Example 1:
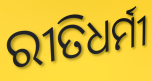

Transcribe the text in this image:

ରୀତିଧର୍ମୀ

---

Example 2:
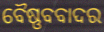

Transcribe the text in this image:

ବୈଷ୍ଣବବାଦର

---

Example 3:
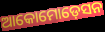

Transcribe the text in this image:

ଆକୋମୋଡ଼େସନ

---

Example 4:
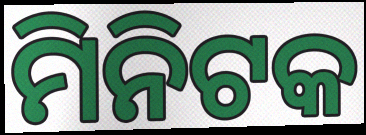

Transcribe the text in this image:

ମିନିଟକ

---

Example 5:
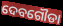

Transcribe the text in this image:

ଦେବଗୌଡା